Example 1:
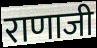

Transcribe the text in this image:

राणाजी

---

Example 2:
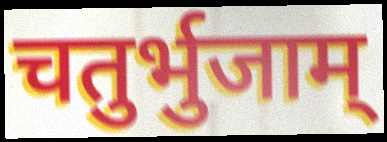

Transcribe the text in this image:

चतुर्भुजाम्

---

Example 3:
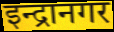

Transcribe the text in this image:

इन्द्रानगर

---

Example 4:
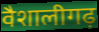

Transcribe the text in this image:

वैशालीगढ़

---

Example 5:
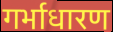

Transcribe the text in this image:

गर्भाधारण